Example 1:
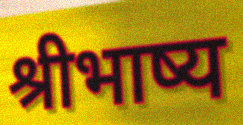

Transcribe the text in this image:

श्रीभाष्य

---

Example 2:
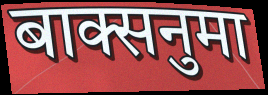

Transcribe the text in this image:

बाक्सनुमा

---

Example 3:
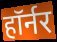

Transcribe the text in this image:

हॉर्नर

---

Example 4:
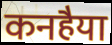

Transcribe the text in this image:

कनहैया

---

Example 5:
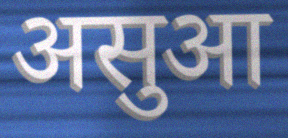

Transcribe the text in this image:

असुआ